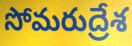
సోమరుద్రేశ